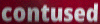
contused